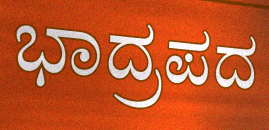
ಭಾದ್ರಪದ